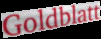
Goldblatt